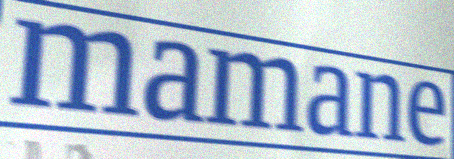
mamane